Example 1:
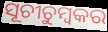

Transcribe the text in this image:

ସୂଚୀଚୁମ୍ବକର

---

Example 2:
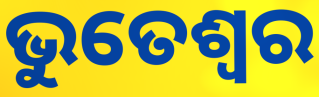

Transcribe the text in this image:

ଭୁତେଶ୍ୱର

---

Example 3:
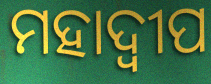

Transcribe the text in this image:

ମହାଦ୍ୱୀପ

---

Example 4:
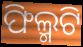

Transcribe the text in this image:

ଫିଲ୍ମଟି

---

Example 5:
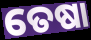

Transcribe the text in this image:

ତେଷା